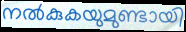
നൽകുകയുമുണ്ടായി